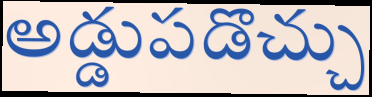
అడ్డుపడొచ్చు